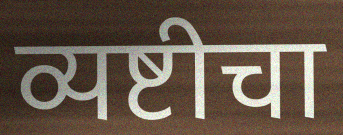
व्यष्टीचा